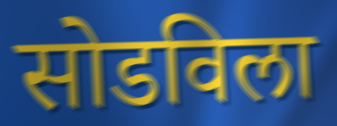
सोडविला